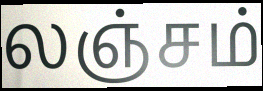
லஞ்சம்